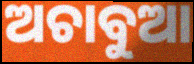
ଅଚାବୁଆ